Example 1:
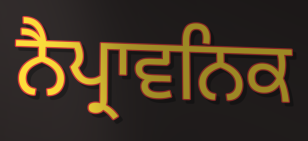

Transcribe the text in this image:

ਨੈਪ੍ਰਾਵਨਿਕ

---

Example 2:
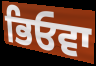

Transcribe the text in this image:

ਭਿਓਵਾ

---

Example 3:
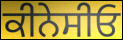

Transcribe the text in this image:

ਕੀਨੇਸੀਓ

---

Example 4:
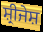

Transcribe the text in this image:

ਸ਼੍ਰੀਜੇਸ਼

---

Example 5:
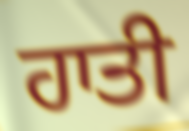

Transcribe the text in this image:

ਹਾਤੀ